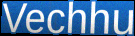
Vechhu